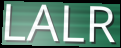
LALR